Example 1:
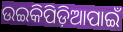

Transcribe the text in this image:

ଉଇକିପିଡ଼ିଆପାଇଁ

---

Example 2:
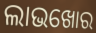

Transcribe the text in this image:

ଲାଭଖୋର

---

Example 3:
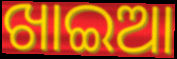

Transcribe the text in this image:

ଖାଇଆ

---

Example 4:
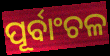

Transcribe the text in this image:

ପୂର୍ବାଂଚଳ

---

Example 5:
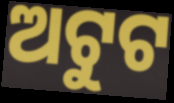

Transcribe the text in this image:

ଅଟୁଟ